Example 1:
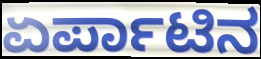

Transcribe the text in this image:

ಏರ್ಪಾಟಿನ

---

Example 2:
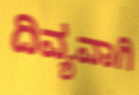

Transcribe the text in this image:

ದಿವ್ಯವಾಗಿ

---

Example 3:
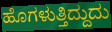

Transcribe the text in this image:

ಹೊಗಳುತ್ತಿದ್ದುದು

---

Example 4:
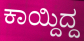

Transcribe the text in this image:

ಕಾಯ್ದಿದ್ದ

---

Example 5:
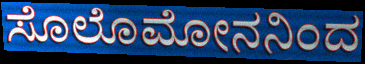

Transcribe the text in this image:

ಸೊಲೊಮೋನನಿಂದ